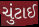
ચુંટાઈ